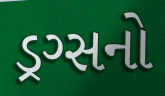
ડ્રગ્સનો